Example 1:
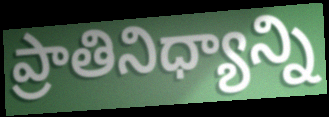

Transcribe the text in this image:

ప్రాతినిధ్యాన్ని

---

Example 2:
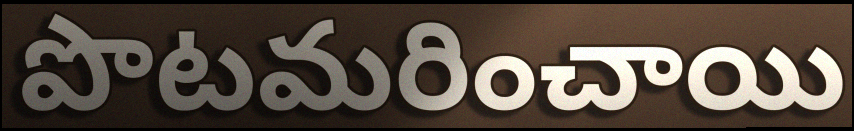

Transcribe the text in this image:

పొటమరించాయి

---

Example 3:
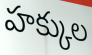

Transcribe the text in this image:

హక్కుల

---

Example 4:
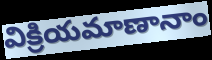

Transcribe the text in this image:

విక్రియమాణానాం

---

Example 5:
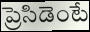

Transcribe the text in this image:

ప్రెసిడెంటే